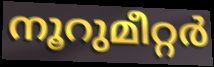
നൂറുമീറ്റർ